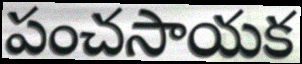
పంచసాయక